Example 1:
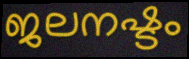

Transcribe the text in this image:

ജലനഷ്ടം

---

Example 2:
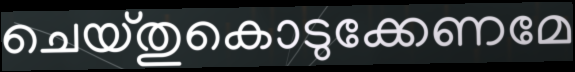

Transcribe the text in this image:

ചെയ്തുകൊടുക്കേണമേ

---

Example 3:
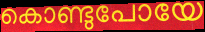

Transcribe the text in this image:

കൊണ്ടുപോയേ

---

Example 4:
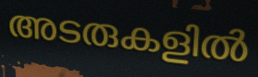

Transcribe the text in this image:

അടരുകളിൽ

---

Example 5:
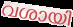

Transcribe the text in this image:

വശായി